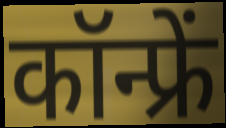
कॉन्फ्रें